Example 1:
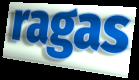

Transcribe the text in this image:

ragas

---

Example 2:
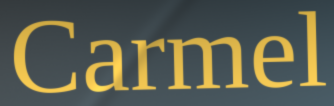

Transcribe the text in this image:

Carmel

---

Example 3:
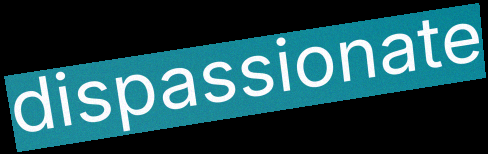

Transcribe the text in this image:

dispassionate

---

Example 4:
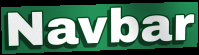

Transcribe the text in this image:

Navbar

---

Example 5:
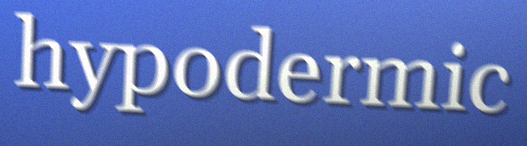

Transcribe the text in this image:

hypodermic